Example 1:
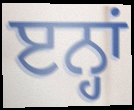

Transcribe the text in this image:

ੲਨ੍ਹਾਂ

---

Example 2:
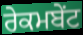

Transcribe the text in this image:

ਰੇਕਮਬੇਂਟ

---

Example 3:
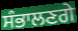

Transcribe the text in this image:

ਸੰਭਾਲਣਗੇ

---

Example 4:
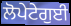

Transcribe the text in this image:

ਲੋਪੇਟੇਗੁਈ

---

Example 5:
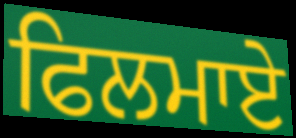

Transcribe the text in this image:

ਫਿਲਮਾਏ